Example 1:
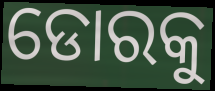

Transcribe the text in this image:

ଡୋରକୁ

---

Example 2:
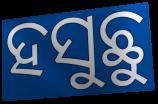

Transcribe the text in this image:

ହସୁଛୁ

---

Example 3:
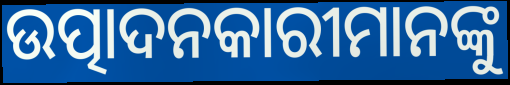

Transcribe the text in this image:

ଉତ୍ପାଦନକାରୀମାନଙ୍କୁ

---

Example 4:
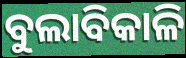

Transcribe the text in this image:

ବୁଲାବିକାଳି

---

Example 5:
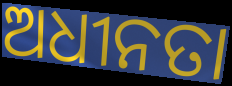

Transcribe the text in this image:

ଅଧୀନତା